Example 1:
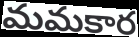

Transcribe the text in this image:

మమకార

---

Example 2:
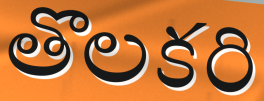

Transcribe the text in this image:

తొలకరి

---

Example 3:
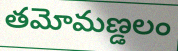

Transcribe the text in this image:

తమోమణ్డలం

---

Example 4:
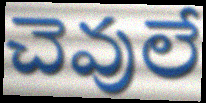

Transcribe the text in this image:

చెవులే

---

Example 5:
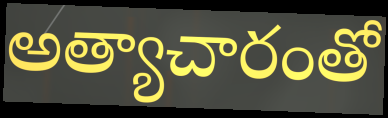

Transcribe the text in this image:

అత్యాచారంతో